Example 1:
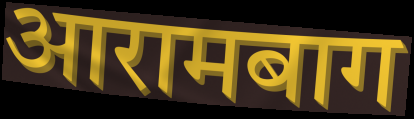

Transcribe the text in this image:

आरामबाग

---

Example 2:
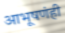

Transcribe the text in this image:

आभूषणंही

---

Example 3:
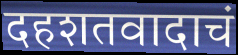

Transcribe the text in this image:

दहशतवादाचं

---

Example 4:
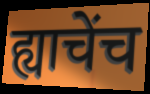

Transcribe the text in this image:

ह्याचेंच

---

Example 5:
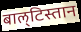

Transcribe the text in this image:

बाल्टिस्तान